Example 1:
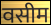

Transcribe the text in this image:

वसीम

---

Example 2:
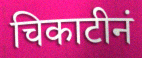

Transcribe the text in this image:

चिकाटीनं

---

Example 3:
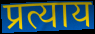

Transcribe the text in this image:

प्रत्याय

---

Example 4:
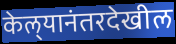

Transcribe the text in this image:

केल्यानंतरदेखील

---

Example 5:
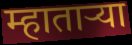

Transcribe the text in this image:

म्हातार्‍या